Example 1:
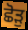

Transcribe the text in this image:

ਛੋੜੁ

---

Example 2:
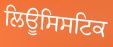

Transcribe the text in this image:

ਲਿਊਸਿਸਟਿਕ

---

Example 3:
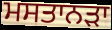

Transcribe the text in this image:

ਮਸਤਾਨੜਾ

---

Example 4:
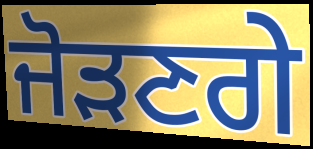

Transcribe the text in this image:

ਜੋੜਣਗੇ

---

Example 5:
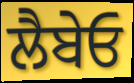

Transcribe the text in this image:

ਲੈਬੇਓ